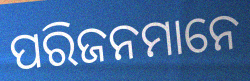
ପରିଜନମାନେ